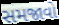
સમજાવો